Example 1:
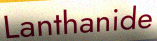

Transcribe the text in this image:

Lanthanide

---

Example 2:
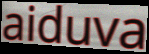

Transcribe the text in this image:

aiduva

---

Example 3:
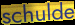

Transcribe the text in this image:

schulde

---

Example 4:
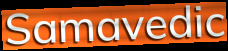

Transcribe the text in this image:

Samavedic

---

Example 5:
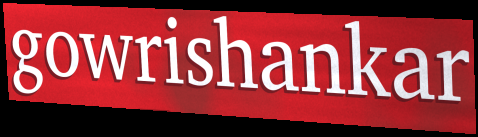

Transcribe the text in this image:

gowrishankar